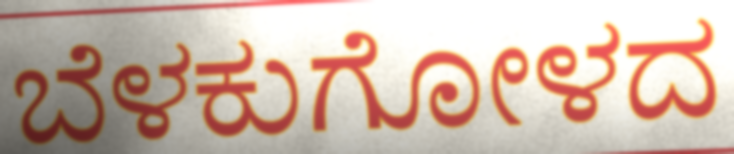
ಬೆಳಕುಗೋಳದ